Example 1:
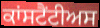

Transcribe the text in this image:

ਕਾਂਸਟੈਂਟੀਅਸ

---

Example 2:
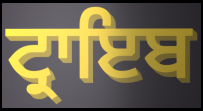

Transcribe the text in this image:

ਟ੍ਰਾਇਬ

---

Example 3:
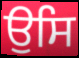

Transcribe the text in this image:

ਉਸਿ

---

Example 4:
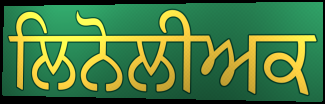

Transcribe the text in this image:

ਲਿਨੋਲੀਅਕ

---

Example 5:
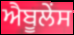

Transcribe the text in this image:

ਐਬੂਲੇਂਸ